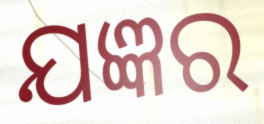
ଯଜ୍ଞର